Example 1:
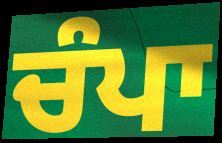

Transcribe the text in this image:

ਚੰਪਾ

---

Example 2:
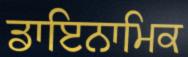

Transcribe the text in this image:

ਡਾਇਨਾਮਿਕ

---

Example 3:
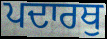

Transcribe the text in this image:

ਪਦਾਰਥੁ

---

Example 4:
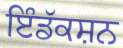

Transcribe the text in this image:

ਇੰਡੱਕਸ਼ਨ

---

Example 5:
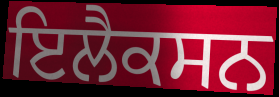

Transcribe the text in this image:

ਇਲੈਕਸਨ